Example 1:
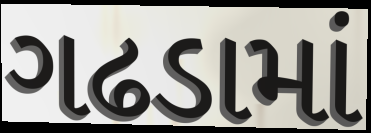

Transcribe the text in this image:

ગઢડામાં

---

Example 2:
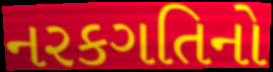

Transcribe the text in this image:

નરકગતિનો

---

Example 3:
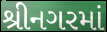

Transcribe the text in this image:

શ્રીનગરમાં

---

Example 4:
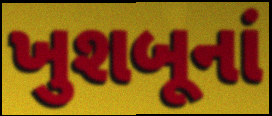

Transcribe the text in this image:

ખુશબૂનાં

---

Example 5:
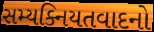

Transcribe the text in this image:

સમ્યક્નિયતવાદનો